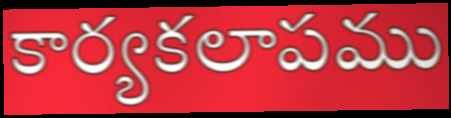
కార్యకలాపము